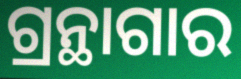
ଗ୍ରନ୍ଥାଗାର